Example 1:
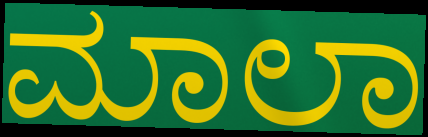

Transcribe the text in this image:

ಮಾಲಾ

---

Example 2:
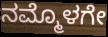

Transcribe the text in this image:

ನಮ್ಮೊಳಗೇ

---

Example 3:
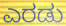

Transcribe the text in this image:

ಎರಡು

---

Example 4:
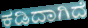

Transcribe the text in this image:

ಕಡಿದಾಗಿದೆ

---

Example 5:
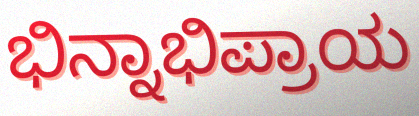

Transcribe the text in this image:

ಭಿನ್ನಾಭಿಪ್ರಾಯ